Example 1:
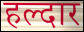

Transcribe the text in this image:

हल्दार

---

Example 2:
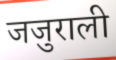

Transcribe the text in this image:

जजुराली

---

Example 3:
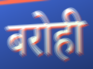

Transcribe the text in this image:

बरोही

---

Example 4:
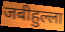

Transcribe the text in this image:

जबीहुल्ला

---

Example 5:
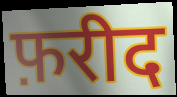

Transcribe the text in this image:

फ़रीद